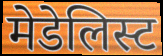
मेडेलिस्ट